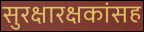
सुरक्षारक्षकांसह